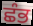
ਛੰਭ